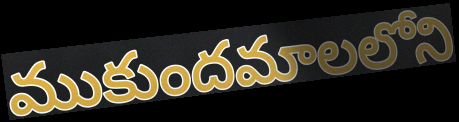
ముకుందమాలలోని